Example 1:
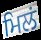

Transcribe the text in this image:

ਮਿਲਂ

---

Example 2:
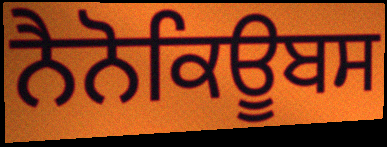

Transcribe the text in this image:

ਨੈਨੋਕਿਊਬਸ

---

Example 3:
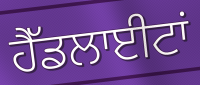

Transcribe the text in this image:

ਹੈੱਡਲਾਈਟਾਂ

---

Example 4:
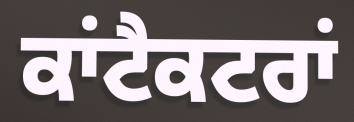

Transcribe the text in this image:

ਕਾਂਟੈਕਟਰਾਂ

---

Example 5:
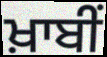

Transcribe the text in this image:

ਖ਼ਾਬੀਂ